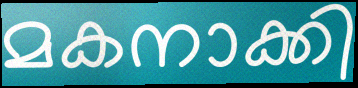
മകനാക്കി